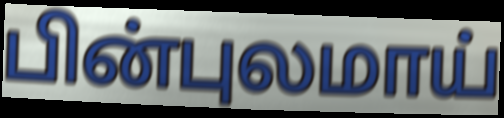
பின்புலமாய்